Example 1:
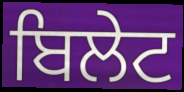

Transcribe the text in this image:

ਬਿਲੇਟ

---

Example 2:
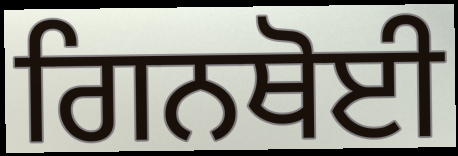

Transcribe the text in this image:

ਗਿਨਥੋਈ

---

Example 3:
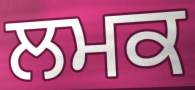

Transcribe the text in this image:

ਲਮਕ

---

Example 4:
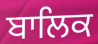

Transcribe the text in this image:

ਬਾਲਿਕ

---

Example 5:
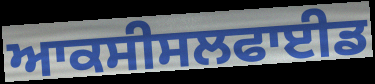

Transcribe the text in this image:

ਆਕਸੀਸਲਫਾਈਡ